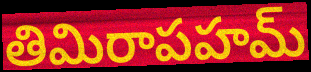
తిమిరాపహమ్